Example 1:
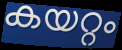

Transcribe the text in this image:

കയറ്റം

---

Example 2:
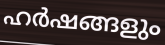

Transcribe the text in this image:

ഹർഷങ്ങളും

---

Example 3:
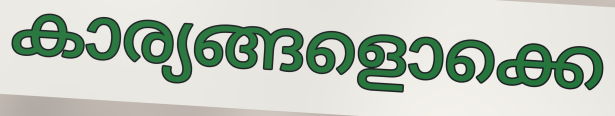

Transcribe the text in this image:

കാര്യങ്ങളൊക്കെ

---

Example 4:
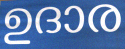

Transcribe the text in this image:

ഉദാര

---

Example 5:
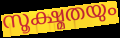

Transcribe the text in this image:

സൂക്ഷ്മതയും